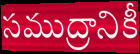
సముద్రానికీ